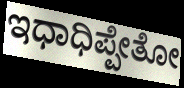
ಇಧಾಧಿಪ್ಪೇತೋ